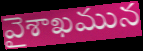
వైశాఖమున